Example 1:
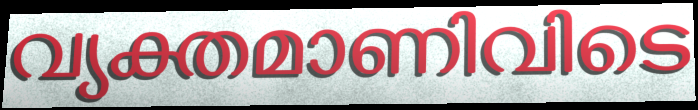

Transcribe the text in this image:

വ്യക്തമാണിവിടെ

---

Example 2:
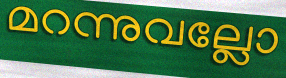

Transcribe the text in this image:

മറന്നുവല്ലോ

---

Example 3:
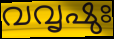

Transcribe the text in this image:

വവൃഷുഃ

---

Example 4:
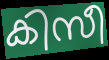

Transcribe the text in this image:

കിസീ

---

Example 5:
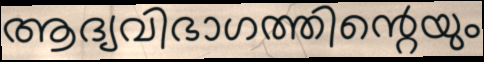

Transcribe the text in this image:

ആദ്യവിഭാഗത്തിന്റെയും